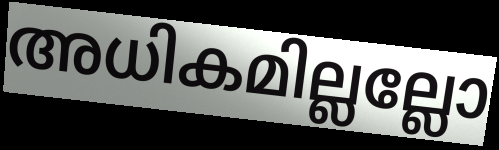
അധികമില്ലല്ലോ